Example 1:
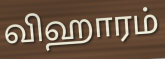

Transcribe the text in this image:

விஹாரம்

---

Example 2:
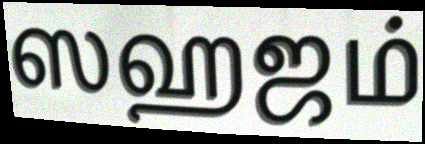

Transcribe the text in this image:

ஸஹஜம்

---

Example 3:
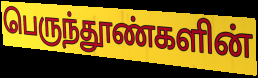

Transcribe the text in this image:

பெருந்தூண்களின்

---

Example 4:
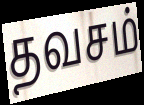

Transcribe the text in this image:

தவசம்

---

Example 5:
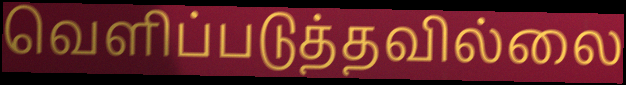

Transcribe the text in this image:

வெளிப்படுத்தவில்லை